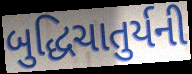
બુદ્ધિચાતુર્યની